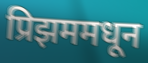
प्रिझममधून